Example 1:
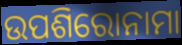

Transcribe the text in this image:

ଉପଶିରୋନାମା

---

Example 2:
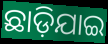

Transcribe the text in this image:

ଛାଡ଼ିଯାଇ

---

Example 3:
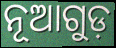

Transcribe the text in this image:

ନୂଆଗୁଡ଼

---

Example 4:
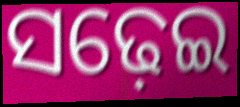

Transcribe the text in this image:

ସଢ଼େଇ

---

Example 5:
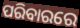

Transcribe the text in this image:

ପରିବାରରେ